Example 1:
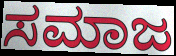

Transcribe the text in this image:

ಸಮಾಜ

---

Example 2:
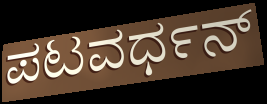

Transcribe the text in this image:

ಪಟವರ್ಧನ್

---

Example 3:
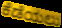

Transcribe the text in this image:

ಕೆಡೆಯಲು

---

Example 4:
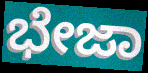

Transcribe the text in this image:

ಭೇಜಾ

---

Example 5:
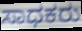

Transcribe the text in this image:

ಸಾಧಕರು